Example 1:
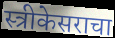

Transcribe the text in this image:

स्त्रीकेसराचा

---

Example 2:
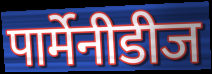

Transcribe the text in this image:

पार्मेनीडीज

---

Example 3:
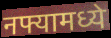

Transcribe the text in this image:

नफ्यामध्ये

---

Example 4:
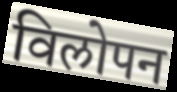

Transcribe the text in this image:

विलोपन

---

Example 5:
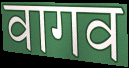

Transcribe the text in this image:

वागव